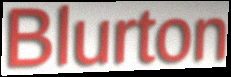
Blurton